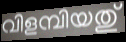
വിളമ്പിയതു്